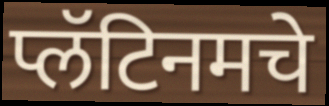
प्लॅटिनमचे